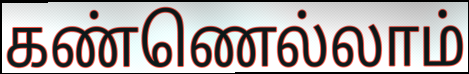
கண்ணெல்லாம்